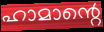
ഹാമാന്റെ